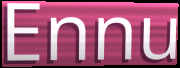
Ennu